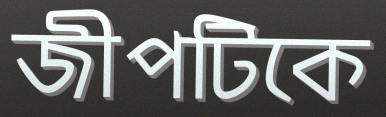
জীপটিকে